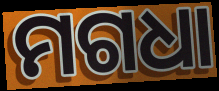
ମଗଧା